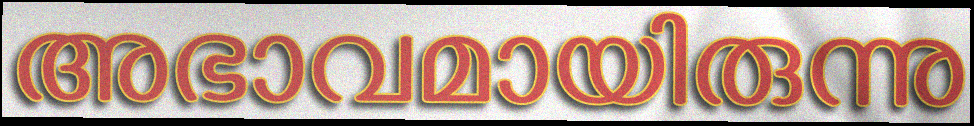
അഭാവമായിരുന്നു